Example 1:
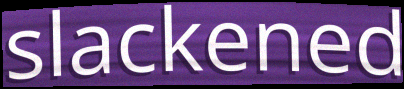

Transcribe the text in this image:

slackened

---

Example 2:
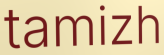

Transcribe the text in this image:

tamizh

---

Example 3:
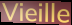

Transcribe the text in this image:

Vieille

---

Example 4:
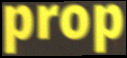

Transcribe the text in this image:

prop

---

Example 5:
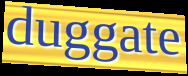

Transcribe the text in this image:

duggate